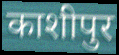
काशीपुर